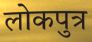
लोकपुत्र